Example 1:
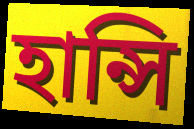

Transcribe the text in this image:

হান্সি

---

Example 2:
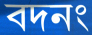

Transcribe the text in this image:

বদনং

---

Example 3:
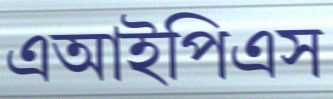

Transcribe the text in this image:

এআইপিএস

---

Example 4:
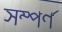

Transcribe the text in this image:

সম্পর্ণ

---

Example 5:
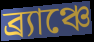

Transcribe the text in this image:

ব্র্যাঞ্চে